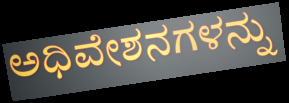
ಅಧಿವೇಶನಗಳನ್ನು